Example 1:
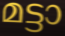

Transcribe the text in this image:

മട്ടാ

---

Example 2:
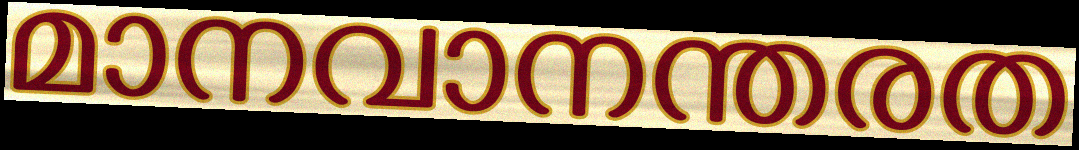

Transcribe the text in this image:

മാനവാനന്തരത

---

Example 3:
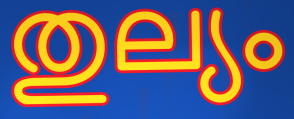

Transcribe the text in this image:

തുല്യം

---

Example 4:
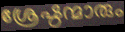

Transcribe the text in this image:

ശ്രേഷ്ഠന്മാരും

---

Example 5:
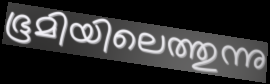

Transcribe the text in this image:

ഭൂമിയിലെത്തുന്നു